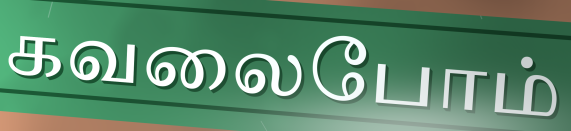
கவலைபோம்